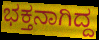
ಭಕ್ತನಾಗಿದ್ದ